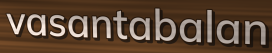
vasantabalan